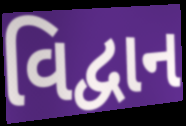
વિદ્વાન